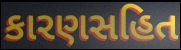
કારણસહિત